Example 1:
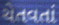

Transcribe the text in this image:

ચેતવતાં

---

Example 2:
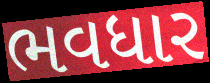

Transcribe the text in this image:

ભવધાર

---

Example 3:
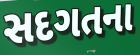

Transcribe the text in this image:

સદગતના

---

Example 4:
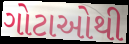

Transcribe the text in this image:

ગોટાઓથી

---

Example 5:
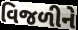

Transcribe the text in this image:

વિજળીને